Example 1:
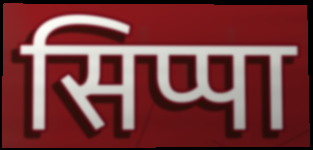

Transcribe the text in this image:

सिप्पा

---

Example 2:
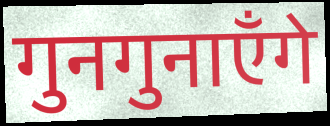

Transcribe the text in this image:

गुनगुनाएँगे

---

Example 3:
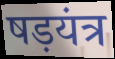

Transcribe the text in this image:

षड़यंत्र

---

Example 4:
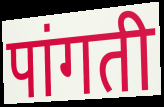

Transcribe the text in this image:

पांगती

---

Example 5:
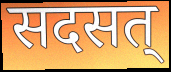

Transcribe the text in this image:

सदसत्